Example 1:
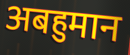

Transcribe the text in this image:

अबहुमान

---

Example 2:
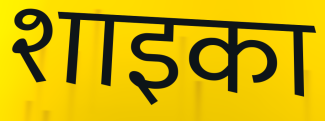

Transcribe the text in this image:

शाइका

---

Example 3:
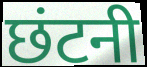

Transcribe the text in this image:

छंटनी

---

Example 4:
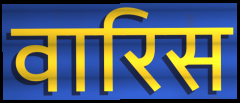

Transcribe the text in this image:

वारिस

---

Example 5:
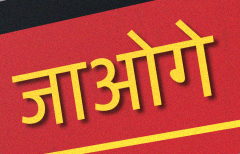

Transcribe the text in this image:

जाओगे